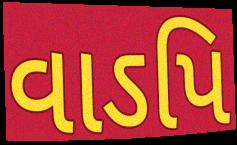
વાઽપિ